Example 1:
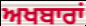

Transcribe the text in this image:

ਅਖਬਾਰਾਂ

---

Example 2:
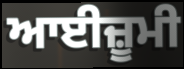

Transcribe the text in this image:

ਆਈਜ਼ੂਮੀ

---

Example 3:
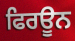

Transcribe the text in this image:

ਫਿਰਊਨ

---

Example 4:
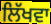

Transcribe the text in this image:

ਲਿੱਖਵਾ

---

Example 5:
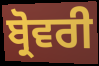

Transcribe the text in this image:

ਬ੍ਰੋਵਰੀ